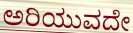
ಅರಿಯುವದೇ